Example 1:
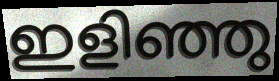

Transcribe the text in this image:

ഇളിഞ്ഞു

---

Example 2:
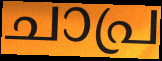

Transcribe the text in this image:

ചാപ്ര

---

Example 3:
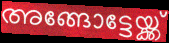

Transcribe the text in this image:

അങ്ങോട്ടേയ്ക്ക്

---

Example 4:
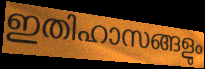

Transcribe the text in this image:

ഇതിഹാസങ്ങളും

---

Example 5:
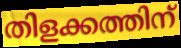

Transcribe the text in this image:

തിളക്കത്തിന്